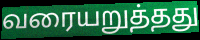
வரையறுத்தது